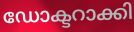
ഡോക്ടറാക്കി